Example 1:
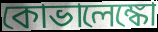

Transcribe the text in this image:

কোভালেঙ্কো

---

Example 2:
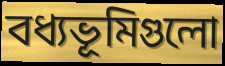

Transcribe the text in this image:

বধ্যভূমিগুলো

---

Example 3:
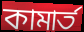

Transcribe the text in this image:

কামার্ত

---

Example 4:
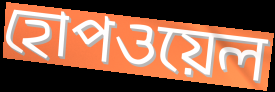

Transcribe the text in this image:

হোপওয়েল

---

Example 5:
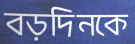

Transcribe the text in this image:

বড়দিনকে